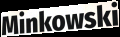
Minkowski